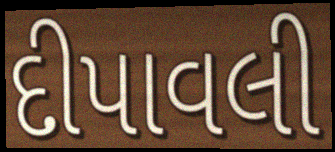
દીપાવલી